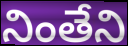
నింతేని